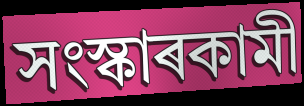
সংস্কাৰকামী